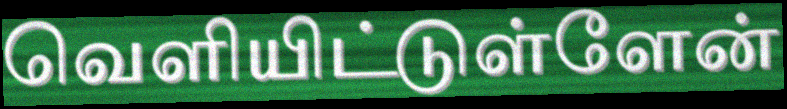
வெளியிட்டுள்ளேன்